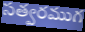
సత్వరముగ